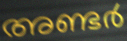
അണ്ടർ